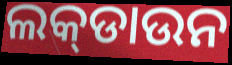
ଲକ୍‌ଡାଉନ